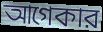
আগেকার